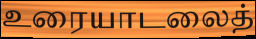
உரையாடலைத்